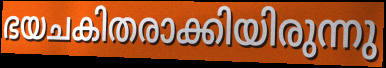
ഭയചകിതരാക്കിയിരുന്നു